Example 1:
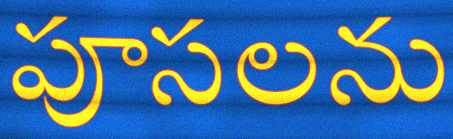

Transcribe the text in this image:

పూసలను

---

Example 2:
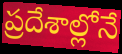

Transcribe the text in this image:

ప్రదేశాల్లోనే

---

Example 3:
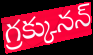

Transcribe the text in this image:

గ్రక్కునన్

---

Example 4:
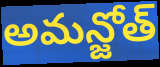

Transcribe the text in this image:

అమన్జోత్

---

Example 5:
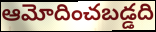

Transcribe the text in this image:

ఆమోదించబడ్డది